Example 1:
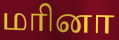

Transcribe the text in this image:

மரினா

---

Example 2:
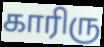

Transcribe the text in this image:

காரிரு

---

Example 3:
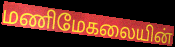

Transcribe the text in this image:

மணிமேகலையின்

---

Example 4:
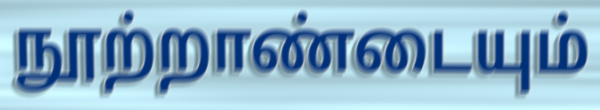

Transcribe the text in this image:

நூற்றாண்டையும்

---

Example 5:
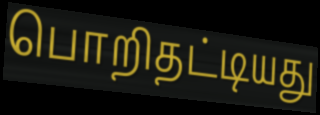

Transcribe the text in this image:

பொறிதட்டியது